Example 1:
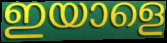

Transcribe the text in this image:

ഇയാളെ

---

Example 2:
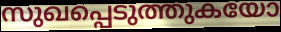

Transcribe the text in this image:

സുഖപ്പെടുത്തുകയോ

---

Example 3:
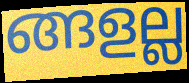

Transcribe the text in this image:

ങ്ങളല്ല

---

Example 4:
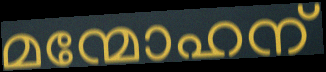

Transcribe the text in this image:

മന്മോഹന്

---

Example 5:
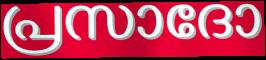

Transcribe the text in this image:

പ്രസാദോ